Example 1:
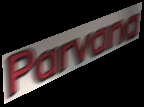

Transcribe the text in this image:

Parvana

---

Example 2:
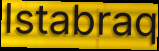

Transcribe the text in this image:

Istabraq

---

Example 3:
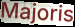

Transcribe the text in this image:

Majoris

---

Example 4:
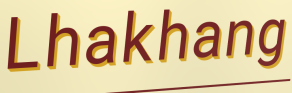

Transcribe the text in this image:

Lhakhang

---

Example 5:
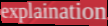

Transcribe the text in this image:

explaination